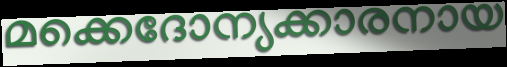
മക്കെദോന്യക്കാരനായ